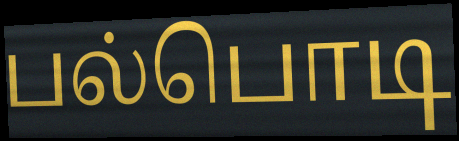
பல்பொடி